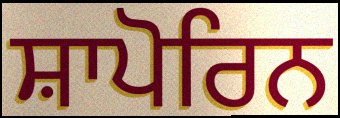
ਸ਼ਾਪੋਰਿਨ